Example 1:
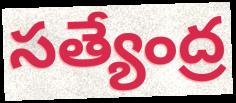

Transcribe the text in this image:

సత్యేంద్ర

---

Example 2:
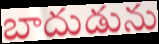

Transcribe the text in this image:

బాదుడును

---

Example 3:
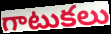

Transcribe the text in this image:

గాటుకలు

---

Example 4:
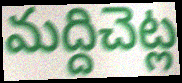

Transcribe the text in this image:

మద్దిచెట్ల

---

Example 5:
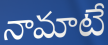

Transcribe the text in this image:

నామాటే